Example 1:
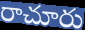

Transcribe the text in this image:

రాచూరు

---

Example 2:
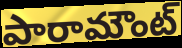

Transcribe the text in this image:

పారామౌంట్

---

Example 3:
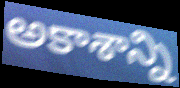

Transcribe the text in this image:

అకాశాన్ని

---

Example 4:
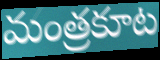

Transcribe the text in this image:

మంత్రకూట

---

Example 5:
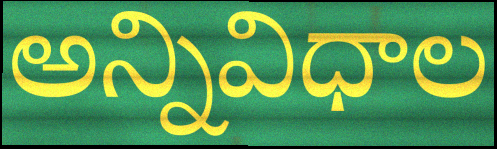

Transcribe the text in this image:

అన్నివిధాల